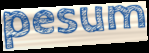
pesum